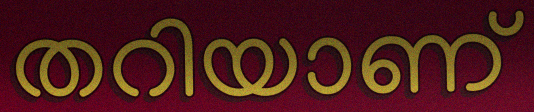
തറിയാണ്